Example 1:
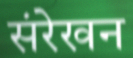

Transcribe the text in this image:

संरेखन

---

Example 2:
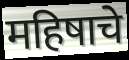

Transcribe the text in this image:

महिषाचे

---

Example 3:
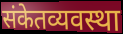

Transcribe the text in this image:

संकेतव्यवस्था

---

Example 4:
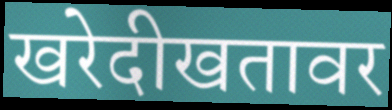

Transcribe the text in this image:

खरेदीखतावर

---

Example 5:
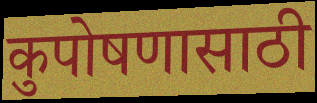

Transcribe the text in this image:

कुपोषणासाठी